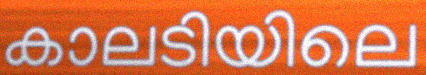
കാലടിയിലെ